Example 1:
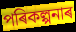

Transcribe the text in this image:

পৰিকল্পনাৰ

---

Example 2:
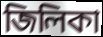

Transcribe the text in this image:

জিলিকা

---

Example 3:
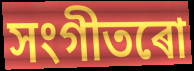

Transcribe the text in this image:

সংগীতৰো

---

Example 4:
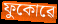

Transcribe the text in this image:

ফুকোৱে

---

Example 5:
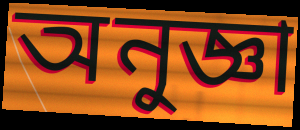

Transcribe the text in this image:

অনুজ্ঞা